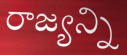
రాజ్యన్ని